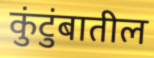
कुंटुंबातील